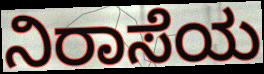
ನಿರಾಸೆಯ